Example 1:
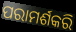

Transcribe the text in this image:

ପରାମର୍ଶକରି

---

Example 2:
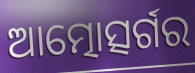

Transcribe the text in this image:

ଆତ୍ମୋତ୍ସର୍ଗର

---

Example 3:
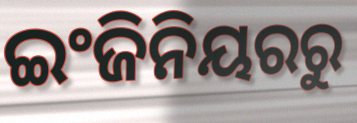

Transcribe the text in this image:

ଇଂଜିନିୟରରୁ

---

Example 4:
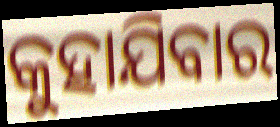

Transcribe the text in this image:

କୁହାଯିବାର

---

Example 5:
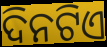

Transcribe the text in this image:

ଦିନଟିଏ